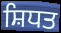
ਸ਼ਿਧਤ